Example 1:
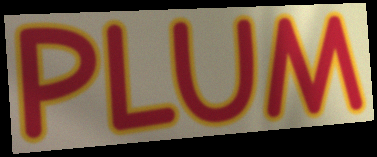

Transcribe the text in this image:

PLUM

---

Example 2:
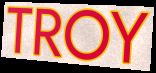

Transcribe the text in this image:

TROY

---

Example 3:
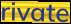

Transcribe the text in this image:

rivate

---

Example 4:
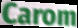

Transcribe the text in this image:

Carom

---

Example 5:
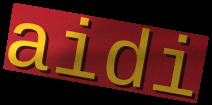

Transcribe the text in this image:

aidi